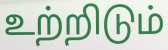
உற்றிடும்